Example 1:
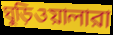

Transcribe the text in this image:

ঘুড়িওয়ালারা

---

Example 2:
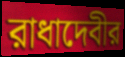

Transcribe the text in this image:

রাধাদেবীর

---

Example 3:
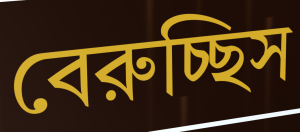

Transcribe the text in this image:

বেরুচ্ছিস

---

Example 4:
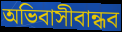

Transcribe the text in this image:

অভিবাসীবান্ধব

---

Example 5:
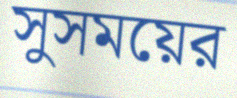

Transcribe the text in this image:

সুসময়ের